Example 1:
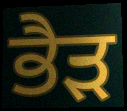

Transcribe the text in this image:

ਭੈੜ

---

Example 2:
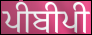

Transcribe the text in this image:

ਪੀਬੀਪੀ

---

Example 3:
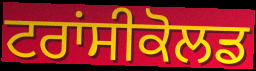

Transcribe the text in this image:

ਟਰਾਂਸੀਕੋਲਡ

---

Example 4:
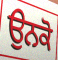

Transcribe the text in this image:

ਉਨਕੋ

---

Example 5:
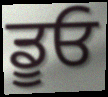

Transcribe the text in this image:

ਡੂਓ